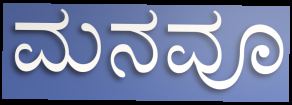
ಮನವೂ